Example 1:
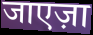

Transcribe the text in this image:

जाएज़ा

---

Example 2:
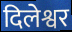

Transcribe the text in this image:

दिलेश्वर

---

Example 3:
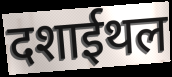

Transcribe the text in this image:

दशाईथल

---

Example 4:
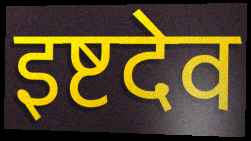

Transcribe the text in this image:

इष्टदेव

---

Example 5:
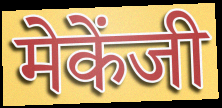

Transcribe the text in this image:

मेकेंजी